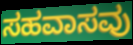
ಸಹವಾಸವು